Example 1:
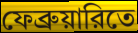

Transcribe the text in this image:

ফেব্রুয়ারিতে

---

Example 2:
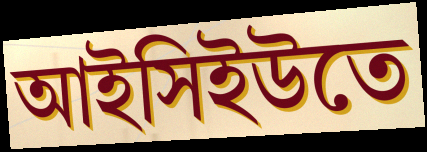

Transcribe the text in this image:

আইসিইউতে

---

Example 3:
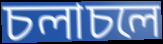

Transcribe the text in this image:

চলাচলে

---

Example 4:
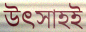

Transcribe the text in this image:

উৎসাহই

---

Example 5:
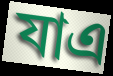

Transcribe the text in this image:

যাএ